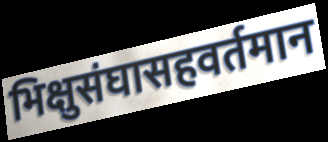
भिक्षुसंघासहवर्तमान